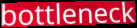
bottleneck